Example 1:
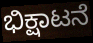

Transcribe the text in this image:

ಭಿಕ್ಷಾಟನೆ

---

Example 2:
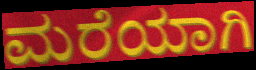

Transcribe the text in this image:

ಮರೆಯಾಗಿ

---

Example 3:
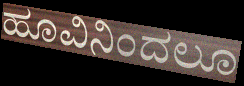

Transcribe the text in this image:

ಹೂವಿನಿಂದಲೂ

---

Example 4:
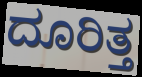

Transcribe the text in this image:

ದೂರಿತ್ತ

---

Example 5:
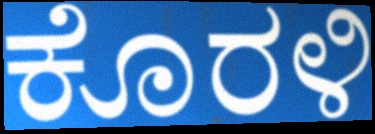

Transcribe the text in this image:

ಕೊರಳಿ